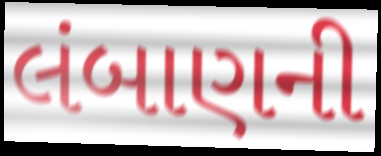
લંબાણની